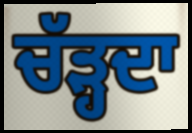
ਚੱੜ੍ਹਦਾ